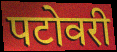
पटोवरी